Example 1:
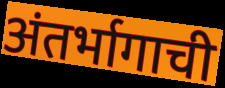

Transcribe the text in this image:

अंतर्भागाची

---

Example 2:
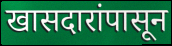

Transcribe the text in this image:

खासदारांपासून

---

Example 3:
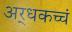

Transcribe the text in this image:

अर्धकच्चं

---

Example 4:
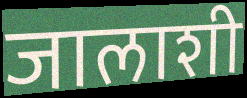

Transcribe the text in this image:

जालाशी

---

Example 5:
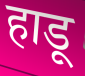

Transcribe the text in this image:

हाडू